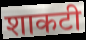
शाकटी